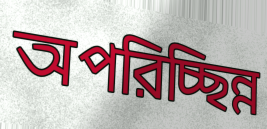
অপরিচ্ছিন্ন